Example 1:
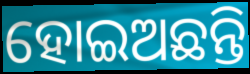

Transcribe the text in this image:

ହୋଇଅଛନ୍ତି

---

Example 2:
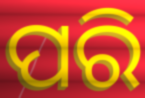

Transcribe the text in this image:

ପରି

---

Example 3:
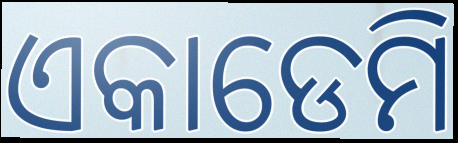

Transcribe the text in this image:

ଏକାଡେମି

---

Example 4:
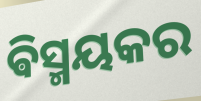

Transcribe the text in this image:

ଵିସ୍ମୟକର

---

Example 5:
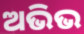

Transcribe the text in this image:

ଅଭିଭ